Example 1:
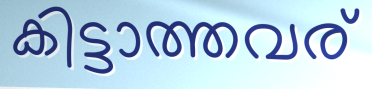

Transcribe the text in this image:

കിട്ടാത്തവര്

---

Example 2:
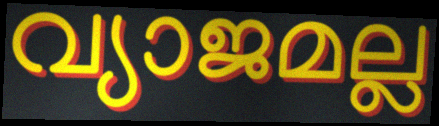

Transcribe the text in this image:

വ്യാജമല്ല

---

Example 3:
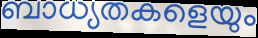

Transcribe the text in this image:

ബാധ്യതകളെയും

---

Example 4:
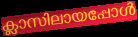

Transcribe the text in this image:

ക്ലാസിലായപ്പോൾ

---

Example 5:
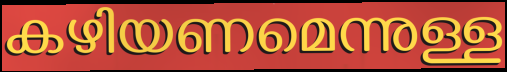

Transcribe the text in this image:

കഴിയണമെന്നുള്ള